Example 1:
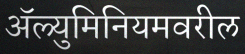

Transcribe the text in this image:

ॲल्युमिनियमवरील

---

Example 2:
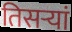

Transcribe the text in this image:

तिसऱ्यां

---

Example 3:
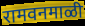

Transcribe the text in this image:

रामवनमाळी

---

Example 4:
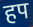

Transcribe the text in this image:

हप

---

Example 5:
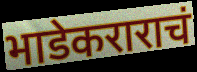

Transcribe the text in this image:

भाडेकराराचं